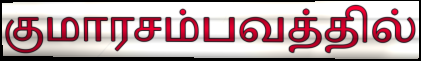
குமாரசம்பவத்தில்